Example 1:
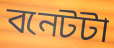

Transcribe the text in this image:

বনেটটা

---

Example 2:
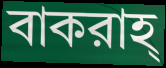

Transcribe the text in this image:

বাকরাহ্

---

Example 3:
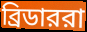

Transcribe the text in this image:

ব্রিডাররা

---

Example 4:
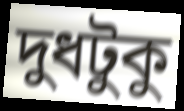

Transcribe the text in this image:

দুধটুকু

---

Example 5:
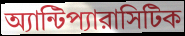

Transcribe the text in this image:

অ্যান্টিপ্যারাসিটিক